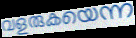
വളരുകയെന്ന